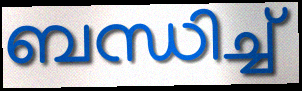
ബന്ധിച്ച്